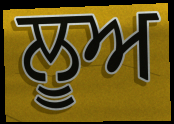
ਲੂਅ